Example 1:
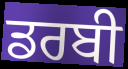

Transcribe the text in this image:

ਡਰਬੀ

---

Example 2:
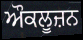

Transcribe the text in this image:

ਔਕਲੂਜ਼ਨ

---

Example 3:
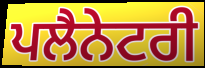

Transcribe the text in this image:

ਪਲੈਨੇਟਰੀ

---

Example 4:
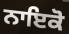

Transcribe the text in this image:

ਨਾਇਕੋ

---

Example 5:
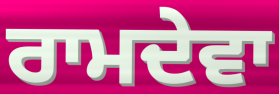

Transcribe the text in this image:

ਰਾਮਦੇਵਾ